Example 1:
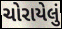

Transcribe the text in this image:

ચોરાયેલું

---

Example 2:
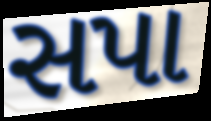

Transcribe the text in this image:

સપા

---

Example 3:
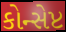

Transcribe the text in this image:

કોન્સેપ્ટ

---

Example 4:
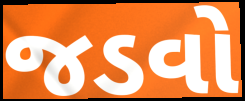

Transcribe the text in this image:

જડવો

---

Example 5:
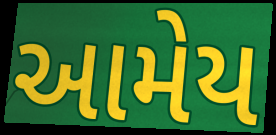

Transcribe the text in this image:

આમેય